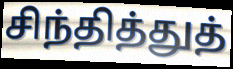
சிந்தித்துத்